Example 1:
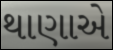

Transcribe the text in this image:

થાણાએ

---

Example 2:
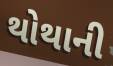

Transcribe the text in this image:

થોથાની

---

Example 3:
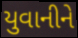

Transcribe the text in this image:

યુવાનીને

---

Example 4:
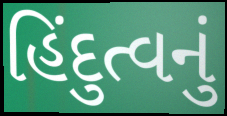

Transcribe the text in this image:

હિંદુત્વનું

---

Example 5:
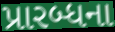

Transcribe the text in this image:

પ્રારબ્ધના